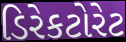
ડિરેકટોરેટ